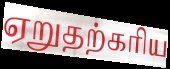
ஏறுதற்கரிய